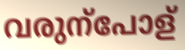
വരുന്പോള്